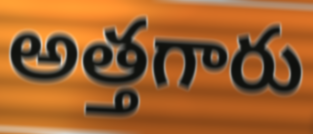
అత్తగారు